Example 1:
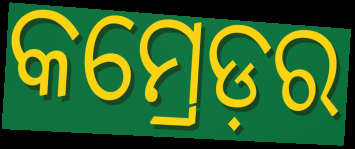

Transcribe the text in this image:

କମ୍ରେଡ଼ର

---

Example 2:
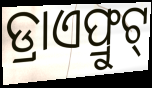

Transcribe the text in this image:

ଡ୍ରାଏଫ୍ରୁଟ୍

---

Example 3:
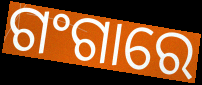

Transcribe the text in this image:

ଗଂଗାରେ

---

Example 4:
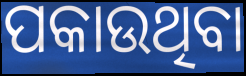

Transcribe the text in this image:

ପକାଉଥିବା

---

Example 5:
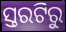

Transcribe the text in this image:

ସ୍ତରଟିରୁ